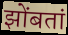
झोंबतां